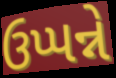
ઉપ્પન્ને